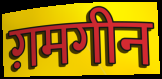
ग़मगीन